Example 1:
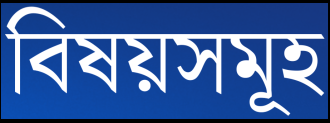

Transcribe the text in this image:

বিষয়সমূহ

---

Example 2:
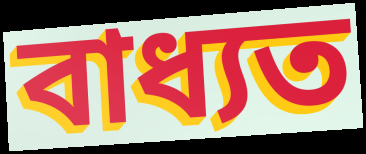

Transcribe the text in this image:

বাধ্যত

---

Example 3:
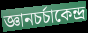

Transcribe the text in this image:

জ্ঞানচর্চাকেন্দ্র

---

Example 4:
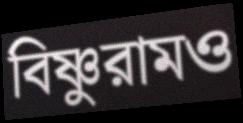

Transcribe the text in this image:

বিষ্ণুরামও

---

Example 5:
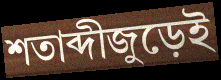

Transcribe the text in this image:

শতাব্দীজুড়েই